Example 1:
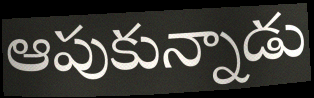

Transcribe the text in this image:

ఆపుకున్నాడు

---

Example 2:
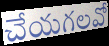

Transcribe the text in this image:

చేయగలవో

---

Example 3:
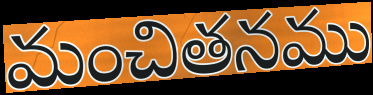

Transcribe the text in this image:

మంచితనము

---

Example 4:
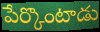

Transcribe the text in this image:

పేర్కొంటాడు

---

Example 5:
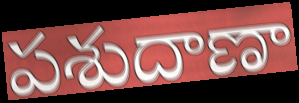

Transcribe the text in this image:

పశుదాణా